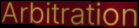
Arbitration